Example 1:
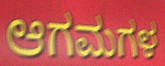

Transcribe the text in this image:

ಆಗಮಗಳ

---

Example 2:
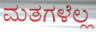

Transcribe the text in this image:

ಮತಗಳೆಲ್ಲ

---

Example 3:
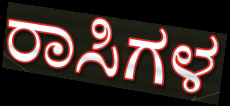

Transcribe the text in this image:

ರಾಸಿಗಳ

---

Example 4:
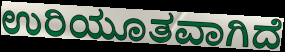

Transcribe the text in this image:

ಉರಿಯೂತವಾಗಿದೆ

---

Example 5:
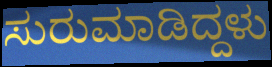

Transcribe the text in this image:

ಸುರುಮಾಡಿದ್ದಳು